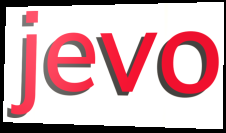
jevo